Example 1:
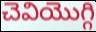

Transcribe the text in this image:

చెవియొగ్గి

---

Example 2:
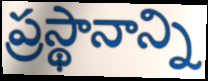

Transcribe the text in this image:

ప్రస్థానాన్ని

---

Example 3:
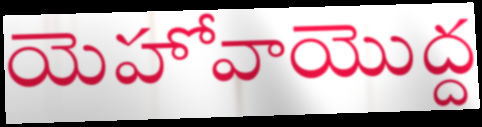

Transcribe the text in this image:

యెహోవాయొద్ద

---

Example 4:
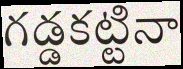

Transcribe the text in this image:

గడ్డకట్టినా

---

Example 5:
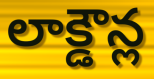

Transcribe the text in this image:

లాక్డౌన్ల